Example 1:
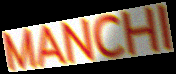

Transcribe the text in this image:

MANCHI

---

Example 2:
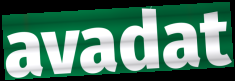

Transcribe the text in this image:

avadat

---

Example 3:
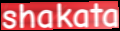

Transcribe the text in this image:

shakata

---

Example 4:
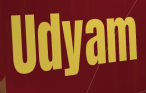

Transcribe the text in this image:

Udyam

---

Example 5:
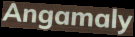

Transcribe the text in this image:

Angamaly